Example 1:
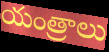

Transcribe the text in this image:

యంత్రాలు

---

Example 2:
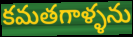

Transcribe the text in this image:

కమతగాళ్ళను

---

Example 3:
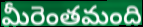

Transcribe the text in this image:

మీరెంతమంది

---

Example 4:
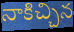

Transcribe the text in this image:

నాకిచ్చిన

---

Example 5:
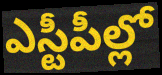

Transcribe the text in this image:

ఎస్టీపీల్లో